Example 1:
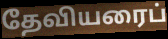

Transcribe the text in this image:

தேவியரைப்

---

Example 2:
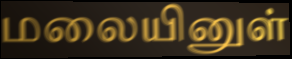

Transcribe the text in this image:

மலையினுள்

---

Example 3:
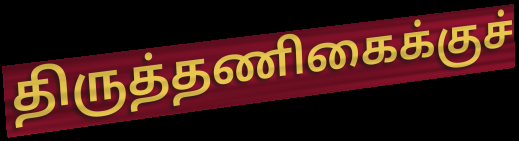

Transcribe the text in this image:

திருத்தணிகைக்குச்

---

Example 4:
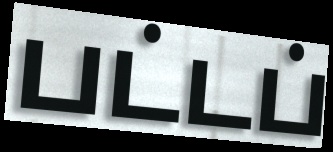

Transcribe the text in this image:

பட்டப்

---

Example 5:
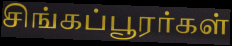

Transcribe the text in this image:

சிங்கப்பூரர்கள்